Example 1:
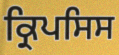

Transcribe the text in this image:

ਕ੍ਰਿਪਸਿਸ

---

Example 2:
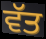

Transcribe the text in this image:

ਵੱਤ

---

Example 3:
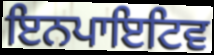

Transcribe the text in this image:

ਇਨਪਾਇਟਿਵ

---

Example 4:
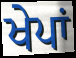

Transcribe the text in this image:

ਖੇਪਾਂ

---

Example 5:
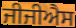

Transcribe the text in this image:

ਜੀਜੀਐਸ